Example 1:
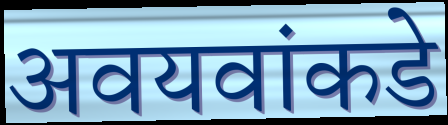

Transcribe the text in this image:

अवयवांकडे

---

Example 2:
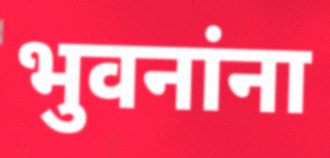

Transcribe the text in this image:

भुवनांना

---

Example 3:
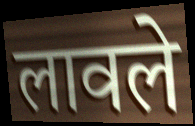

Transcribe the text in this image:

लावले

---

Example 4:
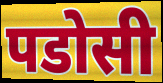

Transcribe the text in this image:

पडोसी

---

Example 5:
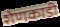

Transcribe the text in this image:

शेणकाडी